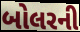
બોલરની